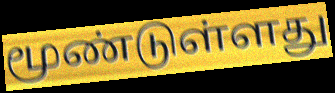
மூண்டுள்ளது